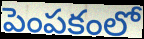
పెంపకంలో